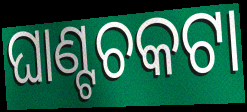
ଘାଣ୍ଟଚକଟା